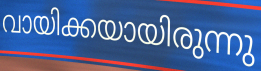
വായിക്കയായിരുന്നു